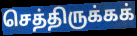
செத்திருக்கக்